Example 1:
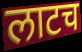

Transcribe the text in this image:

लाटच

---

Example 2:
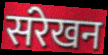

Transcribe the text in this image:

संरेखन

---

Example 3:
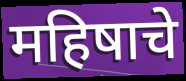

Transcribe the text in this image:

महिषाचे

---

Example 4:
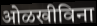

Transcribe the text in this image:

ओळखीविना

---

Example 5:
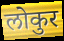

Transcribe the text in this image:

लोकुर